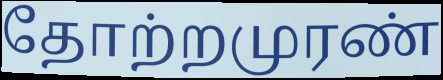
தோற்றமுரண்